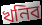
খনিব